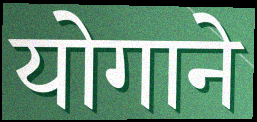
योगाने